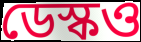
ডেস্কও